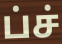
ப்ச்